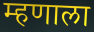
म्हणाला